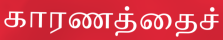
காரணத்தைச்